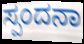
ಸ್ಪಂದನಾ